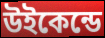
উইকেন্ডে